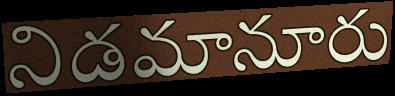
నిడమానూరు